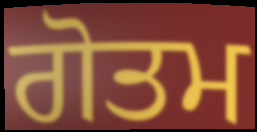
ਗੋਤਮ